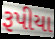
રૂપીયા